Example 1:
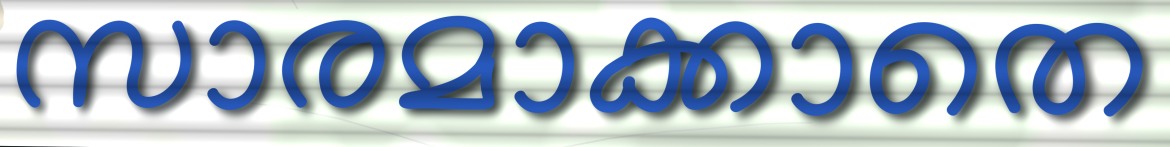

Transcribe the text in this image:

സാരമാക്കാതെ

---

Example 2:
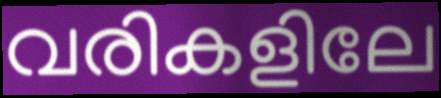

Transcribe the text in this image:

വരികളിലേ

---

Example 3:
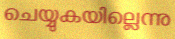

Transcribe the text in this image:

ചെയ്യുകയില്ലെന്നു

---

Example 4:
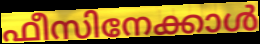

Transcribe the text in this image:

ഫീസിനേക്കാൾ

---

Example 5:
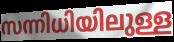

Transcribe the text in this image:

സന്നിധിയിലുള്ള